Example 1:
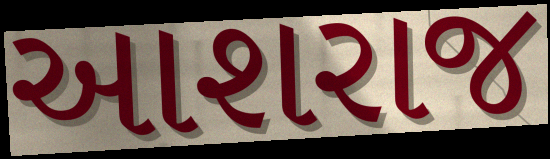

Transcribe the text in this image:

આશરાજ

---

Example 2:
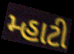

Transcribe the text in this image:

મ્હાટી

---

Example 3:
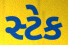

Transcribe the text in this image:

સ્ટેક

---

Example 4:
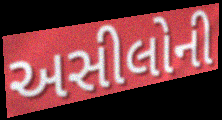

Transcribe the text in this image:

અસીલોની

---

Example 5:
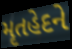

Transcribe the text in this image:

મૃતહેદને